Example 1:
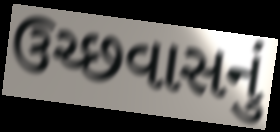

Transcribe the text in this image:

ઉચ્છવાસનું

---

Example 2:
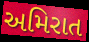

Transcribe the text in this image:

અમિરાત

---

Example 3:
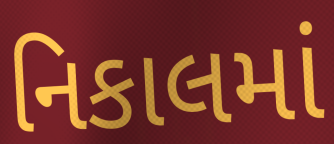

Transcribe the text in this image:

નિકાલમાં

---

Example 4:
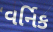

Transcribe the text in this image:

વર્નિક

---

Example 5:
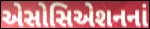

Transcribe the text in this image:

એસોસિએશનનાં